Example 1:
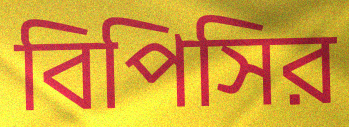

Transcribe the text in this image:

বিপিসির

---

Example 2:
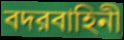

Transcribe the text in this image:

বদরবাহিনী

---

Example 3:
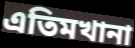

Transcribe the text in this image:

এতিমখানা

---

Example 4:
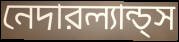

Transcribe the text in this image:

নেদারল্যান্ড্‌স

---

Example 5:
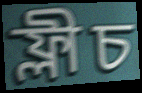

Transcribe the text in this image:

ফ্লীচ